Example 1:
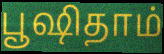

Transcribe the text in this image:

பூஷிதாம்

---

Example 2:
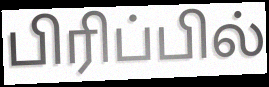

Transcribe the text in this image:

பிரிப்பில்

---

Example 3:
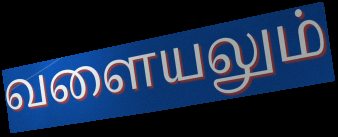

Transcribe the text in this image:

வளையலும்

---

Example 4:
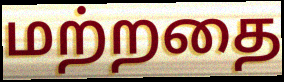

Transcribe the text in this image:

மற்றதை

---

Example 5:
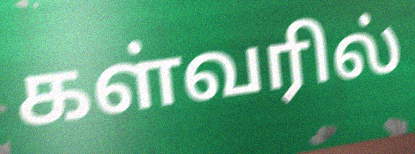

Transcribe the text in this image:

கள்வரில்